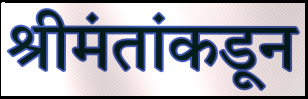
श्रीमंतांकडून